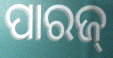
ପାରଜ୍